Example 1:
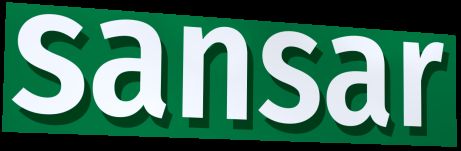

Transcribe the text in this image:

sansar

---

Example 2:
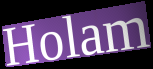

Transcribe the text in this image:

Holam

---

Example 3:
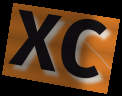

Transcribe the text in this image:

xc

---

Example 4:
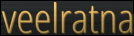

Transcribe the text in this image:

veelratna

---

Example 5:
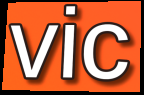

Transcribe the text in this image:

vic